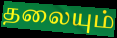
தலையும்